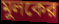
মুলকের